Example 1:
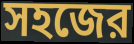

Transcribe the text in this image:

সহজের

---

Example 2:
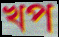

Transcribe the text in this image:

খপ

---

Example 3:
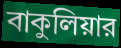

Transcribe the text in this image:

বাকুলিয়ার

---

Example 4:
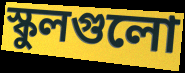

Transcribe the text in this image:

স্কুলগুলো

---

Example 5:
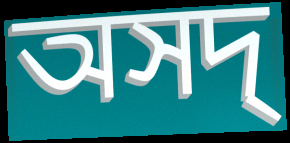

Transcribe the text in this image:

অসদ্